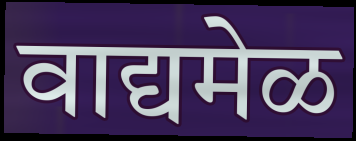
वाद्यमेळ